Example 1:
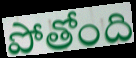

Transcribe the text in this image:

పోతోంది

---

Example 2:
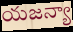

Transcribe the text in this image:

యజన్యా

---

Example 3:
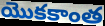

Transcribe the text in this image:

యొకకాంత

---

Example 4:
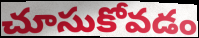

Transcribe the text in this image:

చూసుకోవడం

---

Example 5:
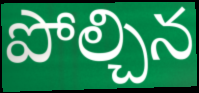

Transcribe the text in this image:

పోల్చిన